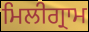
ਮਿਲੀਗ੍ਰਾਮ